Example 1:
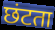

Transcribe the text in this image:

छंटता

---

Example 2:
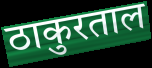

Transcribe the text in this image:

ठाकुरताल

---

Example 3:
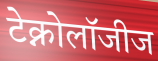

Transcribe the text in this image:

टेक्नोलॉजीज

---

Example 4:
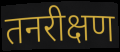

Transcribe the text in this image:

तनरीक्षण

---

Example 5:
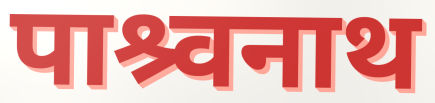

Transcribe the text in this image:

पाश्र्वनाथ